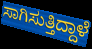
ಸಾಗಿಸುತ್ತಿದ್ದಾಳೆ